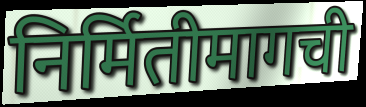
निर्मितीमागची